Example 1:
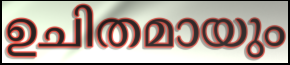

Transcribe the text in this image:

ഉചിതമായും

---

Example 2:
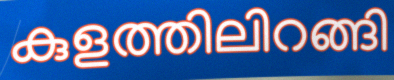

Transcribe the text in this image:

കുളത്തിലിറങ്ങി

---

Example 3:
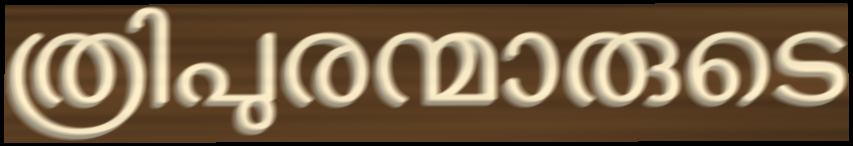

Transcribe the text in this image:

ത്രിപുരന്മാരുടെ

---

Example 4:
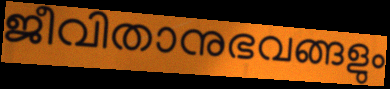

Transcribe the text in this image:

ജീവിതാനുഭവങ്ങളും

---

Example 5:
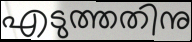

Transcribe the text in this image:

എടുത്തതിനു